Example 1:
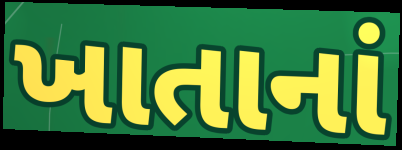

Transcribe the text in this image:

ખાતાનાં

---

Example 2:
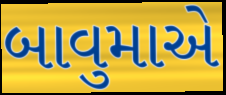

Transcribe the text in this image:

બાવુમાએ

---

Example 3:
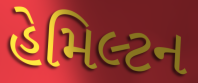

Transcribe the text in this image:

હેમિલ્ટન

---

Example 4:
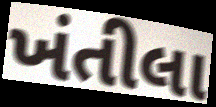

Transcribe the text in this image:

ખંતીલા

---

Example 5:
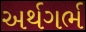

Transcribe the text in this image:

અર્થગર્ભ